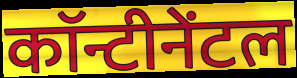
कॉन्टीनेंटल